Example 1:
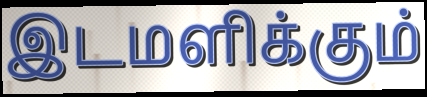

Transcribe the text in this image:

இடமளிக்கும்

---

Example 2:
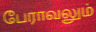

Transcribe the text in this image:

பேராவலும்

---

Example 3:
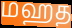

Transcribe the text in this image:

மஹத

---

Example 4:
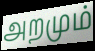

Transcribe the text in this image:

அறமும்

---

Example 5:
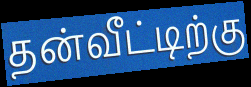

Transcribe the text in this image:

தன்வீட்டிற்கு